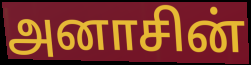
அனாசின்